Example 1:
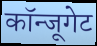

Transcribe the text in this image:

कॉन्जूगेट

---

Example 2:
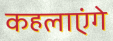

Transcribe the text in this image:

कहलाएंगे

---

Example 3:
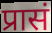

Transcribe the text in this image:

प्रासं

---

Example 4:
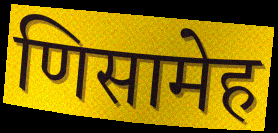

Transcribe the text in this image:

णिसामेह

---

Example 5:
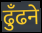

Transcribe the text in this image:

ढुँढने